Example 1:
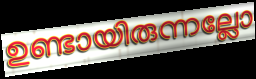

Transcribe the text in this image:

ഉണ്ടായിരുന്നല്ലോ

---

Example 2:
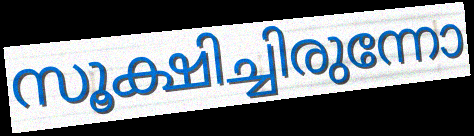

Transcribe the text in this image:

സൂക്ഷിച്ചിരുന്നോ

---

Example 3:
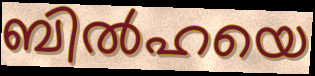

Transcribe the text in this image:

ബിൽഹയെ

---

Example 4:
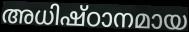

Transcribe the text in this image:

അധിഷ്ഠാനമായ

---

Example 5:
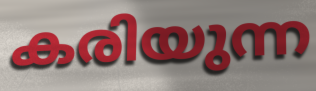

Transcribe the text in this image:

കരിയുന്ന